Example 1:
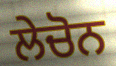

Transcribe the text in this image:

ਲੇਚੋਨ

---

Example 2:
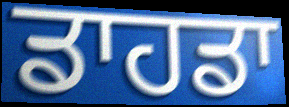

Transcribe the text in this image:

ਡਾਹਡਾ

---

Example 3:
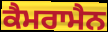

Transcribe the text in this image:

ਕੈਮਰਾਮੈਨ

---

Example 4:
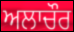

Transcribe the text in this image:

ਅਲਾਚੌਰ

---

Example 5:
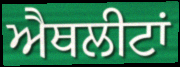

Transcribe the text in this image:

ਐਥਲੀਟਾਂ